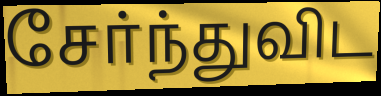
சேர்ந்துவிட